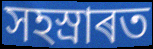
সহস্ৰাৰত